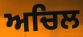
ਅਚਿਲ